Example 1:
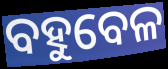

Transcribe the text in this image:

ବହୁବେଳ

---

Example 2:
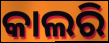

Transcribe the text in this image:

କାଲରି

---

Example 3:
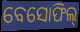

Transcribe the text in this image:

ବେସୋଫିଲ୍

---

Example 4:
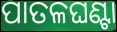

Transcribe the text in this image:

ପାତଳଘଣ୍ଟା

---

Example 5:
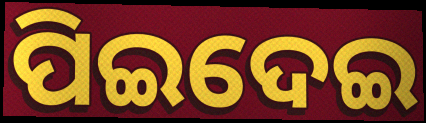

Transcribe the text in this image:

ପିଇଦେଇ